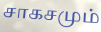
சாகசமும்